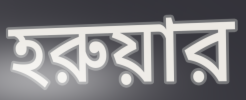
হরুয়ার